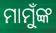
ମାମୁଁଙ୍କ